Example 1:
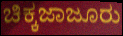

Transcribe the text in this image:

ಚಿಕ್ಕಜಾಜೂರು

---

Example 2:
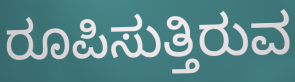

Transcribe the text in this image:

ರೂಪಿಸುತ್ತಿರುವ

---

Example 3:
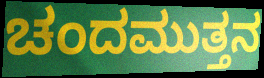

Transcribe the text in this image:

ಚಂದಮುತ್ತನ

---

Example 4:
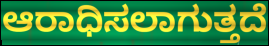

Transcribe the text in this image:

ಆರಾಧಿಸಲಾಗುತ್ತದೆ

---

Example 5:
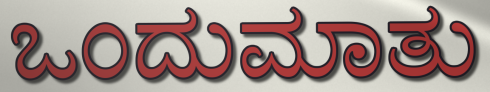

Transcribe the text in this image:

ಒಂದುಮಾತು